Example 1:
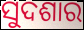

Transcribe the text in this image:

ସୁଦଶାର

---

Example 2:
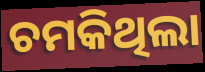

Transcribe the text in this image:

ଚମକିଥିଲା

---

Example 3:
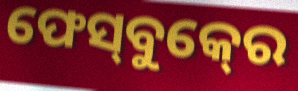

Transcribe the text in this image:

ଫେସ୍‍ବୁକ୍‍ରେ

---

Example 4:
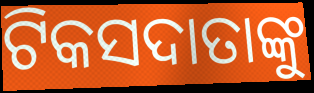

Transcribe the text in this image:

ଟିକସଦାତାଙ୍କୁ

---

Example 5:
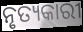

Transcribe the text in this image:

ନୃତ୍ୟକାରୀ